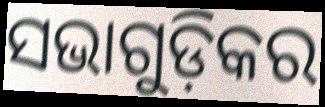
ସଭାଗୁଡ଼ିକର